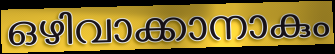
ഒഴിവാക്കാനാകും